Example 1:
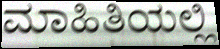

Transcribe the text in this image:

ಮಾಹಿತಿಯಲ್ಲಿ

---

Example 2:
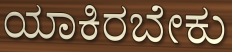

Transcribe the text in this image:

ಯಾಕಿರಬೇಕು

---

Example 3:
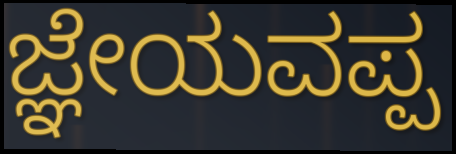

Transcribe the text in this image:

ಜ್ಞೇಯವಪ್ಪ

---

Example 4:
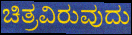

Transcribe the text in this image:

ಚಿತ್ರವಿರುವುದು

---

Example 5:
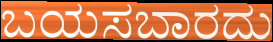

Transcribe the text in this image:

ಬಯಸಬಾರದು